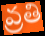
వ్రతి